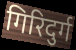
गिरिदुर्ग